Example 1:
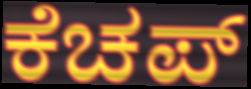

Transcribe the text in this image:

ಕೆಚಪ್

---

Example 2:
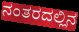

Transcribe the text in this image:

ನಂತರದಲ್ಲಿನ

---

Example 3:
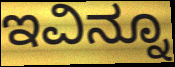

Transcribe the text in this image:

ಇವಿನ್ನೂ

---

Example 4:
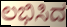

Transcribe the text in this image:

ಲಭಿಸಿದ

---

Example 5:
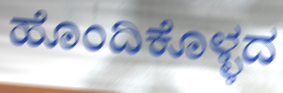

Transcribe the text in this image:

ಹೊಂದಿಕೊಳ್ಳದ